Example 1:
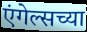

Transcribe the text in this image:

एंगेल्सच्या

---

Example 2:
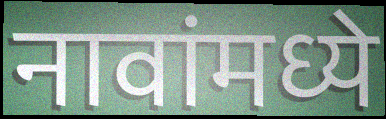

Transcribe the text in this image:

नावांमध्ये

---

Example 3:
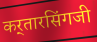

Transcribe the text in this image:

कर्तारसिंगजी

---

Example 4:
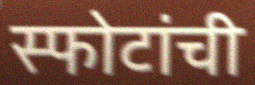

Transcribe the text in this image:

स्फोटांची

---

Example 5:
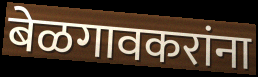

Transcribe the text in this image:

बेळगावकरांना